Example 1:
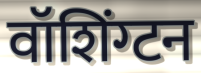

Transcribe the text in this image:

वॉशिंग्टन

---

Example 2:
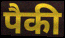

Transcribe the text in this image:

पैकी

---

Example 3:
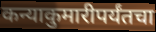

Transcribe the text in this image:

कन्याकुमारीपर्यंतचा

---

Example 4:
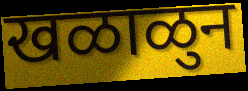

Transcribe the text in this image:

खळाळुन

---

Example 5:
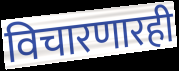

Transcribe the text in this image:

विचारणारही